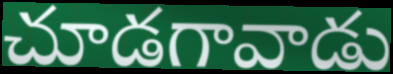
చూడగావాడు